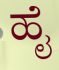
ಹೈ